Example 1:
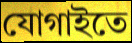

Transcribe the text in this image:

যোগাইতে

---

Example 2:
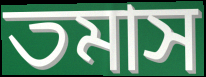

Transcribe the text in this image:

তমাস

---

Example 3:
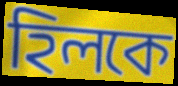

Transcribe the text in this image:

হিলকে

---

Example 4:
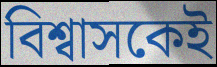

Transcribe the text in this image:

বিশ্বাসকেই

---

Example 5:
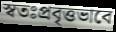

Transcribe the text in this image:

স্বতঃপ্রবৃত্তভাবে